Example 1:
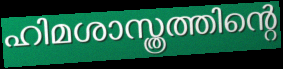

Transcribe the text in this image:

ഹിമശാസ്ത്രത്തിന്റെ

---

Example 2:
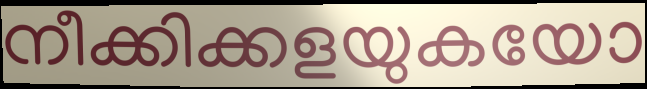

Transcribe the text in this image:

നീക്കിക്കളയുകയോ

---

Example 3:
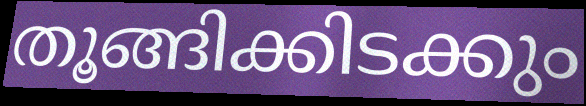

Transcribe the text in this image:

തൂങ്ങിക്കിടക്കും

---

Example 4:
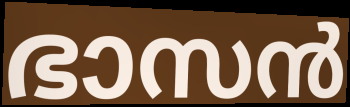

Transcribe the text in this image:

ഭാസൻ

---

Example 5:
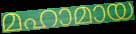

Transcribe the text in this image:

മഹാമായ